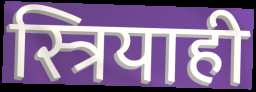
स्त्रियाही